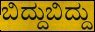
ಬಿದ್ದುಬಿದ್ದು